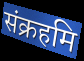
संक्रहमि